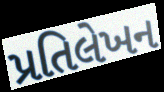
પ્રતિલેખન